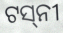
ଟସ୍‌ନୀ